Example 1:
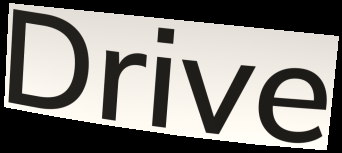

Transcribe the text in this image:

Drive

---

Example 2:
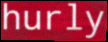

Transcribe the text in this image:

hurly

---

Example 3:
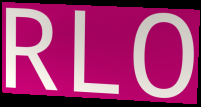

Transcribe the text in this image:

RLO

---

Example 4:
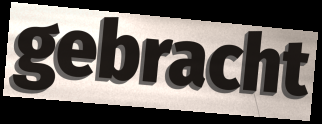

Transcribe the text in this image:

gebracht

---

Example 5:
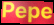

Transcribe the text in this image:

Pepe